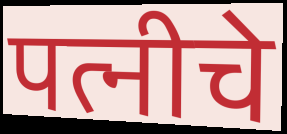
पत्‍नीचे